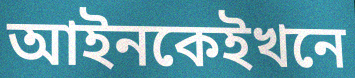
আইনকেইখনে